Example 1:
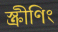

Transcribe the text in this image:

স্ক্ৰীণিং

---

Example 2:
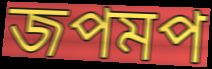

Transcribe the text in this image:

জপমপ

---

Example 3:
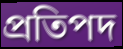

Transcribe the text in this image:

প্ৰতিপদ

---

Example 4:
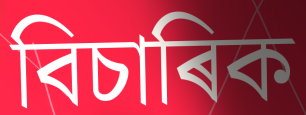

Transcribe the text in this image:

বিচাৰিক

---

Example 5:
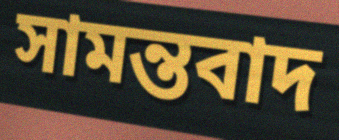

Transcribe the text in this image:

সামন্তবাদ